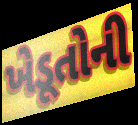
ખેડૂતોની